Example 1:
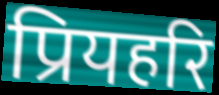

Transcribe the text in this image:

प्रियहरि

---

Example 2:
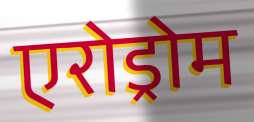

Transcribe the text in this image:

एरोड्रोम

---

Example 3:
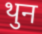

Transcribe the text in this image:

थुन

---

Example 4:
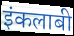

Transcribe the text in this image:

इंकलाबी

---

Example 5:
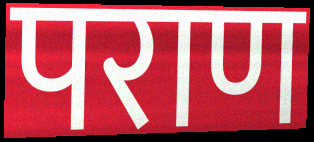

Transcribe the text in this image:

पराण